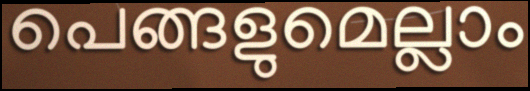
പെങ്ങളുമെല്ലാം